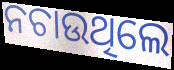
ନଚାଉଥିଲେ